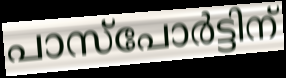
പാസ്പോർട്ടിന്